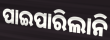
ପାଇପାରିଲାନି